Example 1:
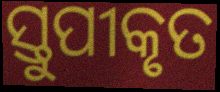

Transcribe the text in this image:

ସ୍ତୁପୀକୃତ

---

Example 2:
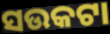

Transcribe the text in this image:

ସଉକଟା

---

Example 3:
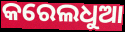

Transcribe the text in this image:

କରେଲଧୁଆ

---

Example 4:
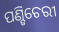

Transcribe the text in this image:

ପଣ୍ଡିଚେରୀ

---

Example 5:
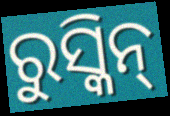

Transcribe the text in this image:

ରୁସ୍କିନ୍